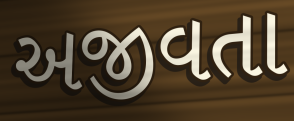
અજીવતા